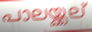
പാലയ്ക്കല്